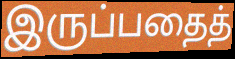
இருப்பதைத்